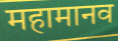
महामानव